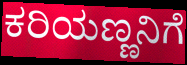
ಕರಿಯಣ್ಣನಿಗೆ